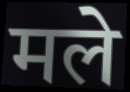
मले